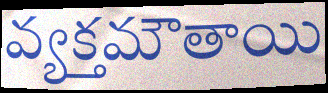
వ్యక్తమౌతాయి